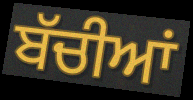
ਬੱਚੀਆਂ